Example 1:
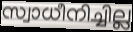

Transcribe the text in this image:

സ്വാധീനിച്ചില്ല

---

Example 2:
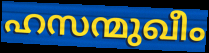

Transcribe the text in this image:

ഹസന്മുഖീം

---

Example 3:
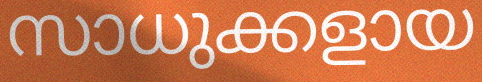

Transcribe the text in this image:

സാധുക്കളായ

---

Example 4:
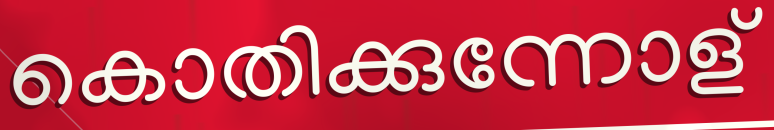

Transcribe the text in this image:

കൊതിക്കുന്നോള്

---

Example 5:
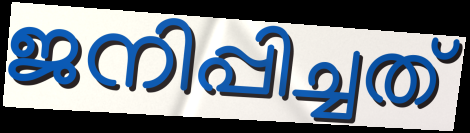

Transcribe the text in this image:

ജനിപ്പിച്ചത്